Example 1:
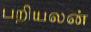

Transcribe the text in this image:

பறியலன்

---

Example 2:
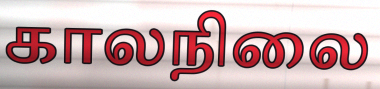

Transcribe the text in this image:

காலநிலை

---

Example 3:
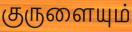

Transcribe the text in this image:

குருளையும்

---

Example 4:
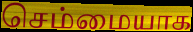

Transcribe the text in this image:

செம்மையாக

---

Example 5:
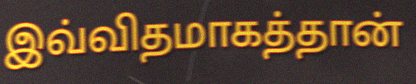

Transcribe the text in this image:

இவ்விதமாகத்தான்